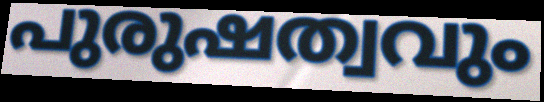
പുരുഷത്വവും